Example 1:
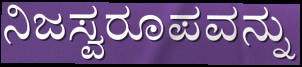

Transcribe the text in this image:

ನಿಜಸ್ವರೂಪವನ್ನು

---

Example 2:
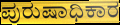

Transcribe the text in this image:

ಪುರುಷಾಧಿಕಾರ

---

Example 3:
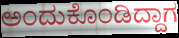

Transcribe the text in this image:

ಅಂದುಕೊಂಡಿದ್ದಾಗ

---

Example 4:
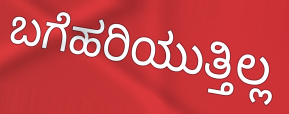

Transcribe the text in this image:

ಬಗೆಹರಿಯುತ್ತಿಲ್ಲ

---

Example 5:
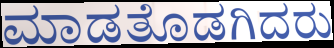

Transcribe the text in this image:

ಮಾಡತೊಡಗಿದರು